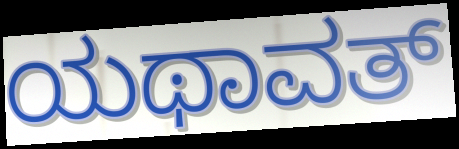
ಯಥಾವತ್